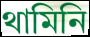
থামিনি